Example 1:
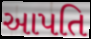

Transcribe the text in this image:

આપતિ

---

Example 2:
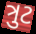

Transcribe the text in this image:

ત્રુટ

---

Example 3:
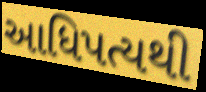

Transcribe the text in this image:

આધિપત્યથી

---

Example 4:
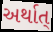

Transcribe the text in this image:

અર્થાત્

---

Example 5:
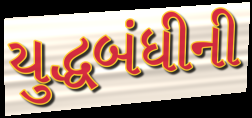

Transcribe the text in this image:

યુદ્ધબંધીની